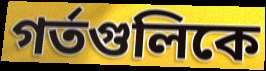
গর্তগুলিকে